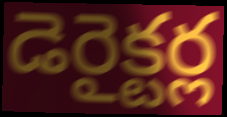
డెరైక్టర్ల